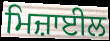
ਮਿਜ਼ਾਈਲ